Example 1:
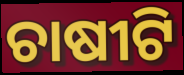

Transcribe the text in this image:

ଚାଷୀଟି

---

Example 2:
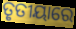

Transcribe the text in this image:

ତୃତୀୟାରେ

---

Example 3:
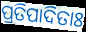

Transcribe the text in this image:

ପ୍ରତିପାଦିତାଃ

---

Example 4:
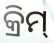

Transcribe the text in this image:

କ୍ରିମ୍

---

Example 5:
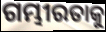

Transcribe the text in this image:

ଗମ୍ଭୀରତାକୁ